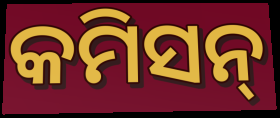
କମିସନ୍